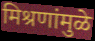
मिश्रणांमुळे